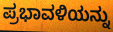
ಪ್ರಭಾವಳಿಯನ್ನು